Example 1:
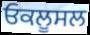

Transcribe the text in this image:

ਓਕਲੂਸਲ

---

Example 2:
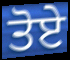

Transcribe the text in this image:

ਤੋਏ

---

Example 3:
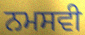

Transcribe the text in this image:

ਨਮਸਵੀ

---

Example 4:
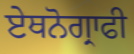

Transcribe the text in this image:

ਏਥਨੋਗ੍ਰਾਫੀ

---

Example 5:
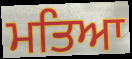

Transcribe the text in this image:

ਮਤਿਆ